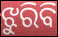
ଝୁରିବି